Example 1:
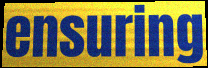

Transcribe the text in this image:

ensuring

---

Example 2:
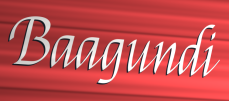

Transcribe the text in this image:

Baagundi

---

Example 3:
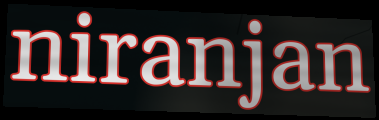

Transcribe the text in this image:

niranjan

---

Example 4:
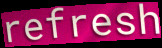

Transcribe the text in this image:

refresh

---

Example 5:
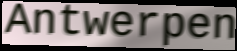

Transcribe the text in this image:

Antwerpen